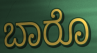
ಬಾರೊ